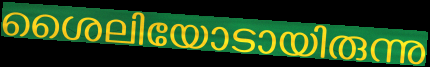
ശൈലിയോടായിരുന്നു